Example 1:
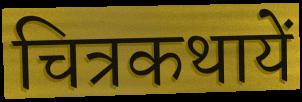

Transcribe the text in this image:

चित्रकथायें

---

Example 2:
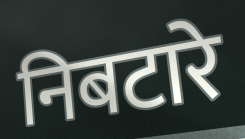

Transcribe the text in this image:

निबटारे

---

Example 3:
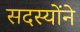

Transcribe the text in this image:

सदस्योंने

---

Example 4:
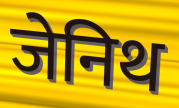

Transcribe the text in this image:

जेनिथ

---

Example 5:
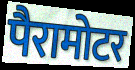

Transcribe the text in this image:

पैरामोटर